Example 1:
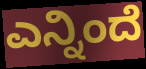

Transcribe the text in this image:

ಎನ್ನಿಂದೆ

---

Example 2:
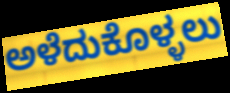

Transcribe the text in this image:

ಅಳೆದುಕೊಳ್ಳಲು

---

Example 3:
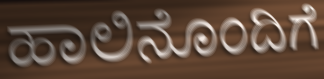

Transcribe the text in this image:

ಹಾಲಿನೊಂದಿಗೆ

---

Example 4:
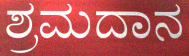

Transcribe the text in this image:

ಶ್ರಮದಾನ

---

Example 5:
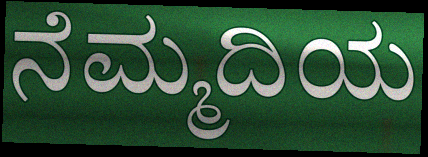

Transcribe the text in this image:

ನೆಮ್ಮದಿಯ